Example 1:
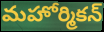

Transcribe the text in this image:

మహోర్మికన్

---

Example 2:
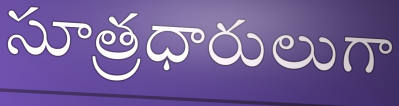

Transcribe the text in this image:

సూత్రధారులుగా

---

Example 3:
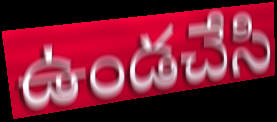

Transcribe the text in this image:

ఉండచేసి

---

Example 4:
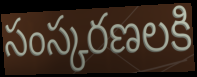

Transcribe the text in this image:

సంస్కరణలకి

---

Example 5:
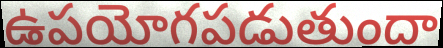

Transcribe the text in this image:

ఉపయోగపడుతుందా